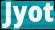
Jyot